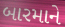
બારમાને